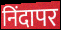
निंदापर